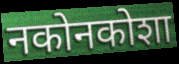
नकोनकोशा